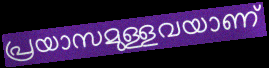
പ്രയാസമുള്ളവയാണ്